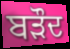
ਬੜੌਦ